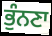
ਭੁੰਨਣਾ